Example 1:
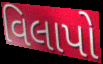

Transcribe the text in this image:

વિલાપો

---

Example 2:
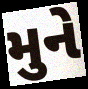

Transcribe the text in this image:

મુને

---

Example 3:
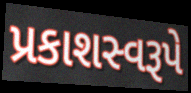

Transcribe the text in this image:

પ્રકાશસ્વરૂપે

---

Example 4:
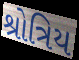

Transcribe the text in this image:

શ્રોત્રિય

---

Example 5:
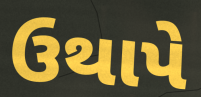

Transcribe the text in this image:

ઉથાપે